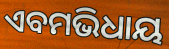
ଏବମଭିଧାୟ